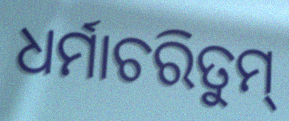
ଧର୍ମାଚରିତୁମ୍